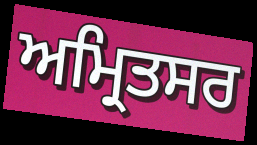
ਅਮ੍ਰਿਤਸਰ